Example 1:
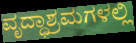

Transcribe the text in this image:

ವೃದ್ಧಾಶ್ರಮಗಳಲ್ಲಿ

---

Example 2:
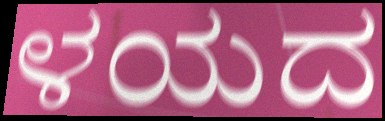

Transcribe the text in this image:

ಳಯದ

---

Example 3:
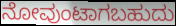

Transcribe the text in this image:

ನೋವುಂಟಾಗಬಹುದು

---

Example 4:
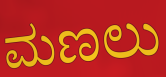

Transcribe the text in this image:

ಮಣಲು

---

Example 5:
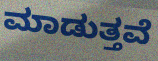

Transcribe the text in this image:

ಮಾಡುತ್ತವೆ